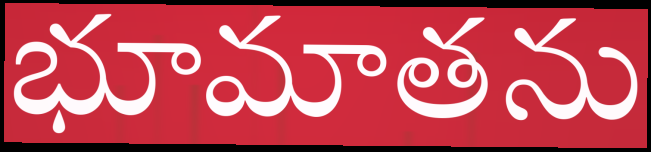
భూమాతను